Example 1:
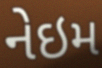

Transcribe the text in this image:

નેઇમ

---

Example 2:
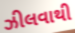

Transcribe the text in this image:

ઝીલવાથી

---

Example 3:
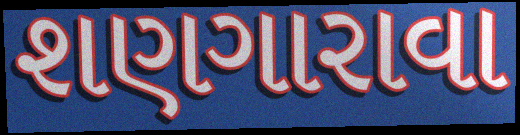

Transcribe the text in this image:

શણગારાવા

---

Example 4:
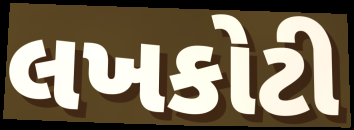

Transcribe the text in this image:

લખકોટી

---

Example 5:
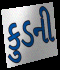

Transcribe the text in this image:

કુડની